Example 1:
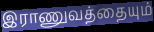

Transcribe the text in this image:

இராணுவத்தையும்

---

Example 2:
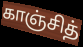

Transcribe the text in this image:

காஞ்சித்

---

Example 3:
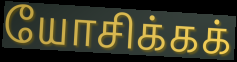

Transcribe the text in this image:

யோசிக்கக்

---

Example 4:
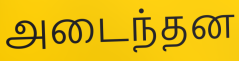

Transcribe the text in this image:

அடைந்தன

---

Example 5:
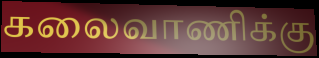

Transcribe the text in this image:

கலைவாணிக்கு